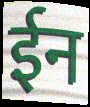
ईन